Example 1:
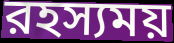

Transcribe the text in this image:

রহস্যময়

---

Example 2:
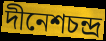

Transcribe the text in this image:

দীনেশচন্দ্র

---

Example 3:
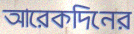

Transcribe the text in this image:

আরেকদিনের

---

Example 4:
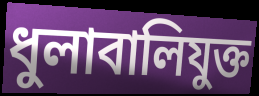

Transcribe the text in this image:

ধুলাবালিযুক্ত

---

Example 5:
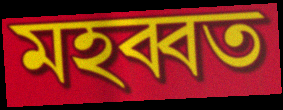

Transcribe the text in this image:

মহব্বত